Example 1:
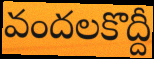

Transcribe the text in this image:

వందలకొద్దీ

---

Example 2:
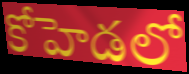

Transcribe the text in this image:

కోహెడలో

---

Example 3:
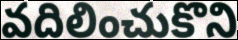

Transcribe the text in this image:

వదిలించుకొని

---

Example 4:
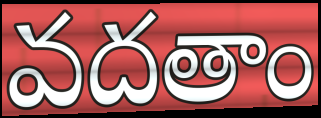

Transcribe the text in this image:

వదతాం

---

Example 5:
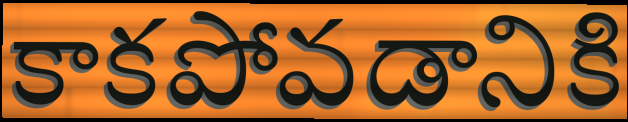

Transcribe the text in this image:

కాకపోవడానికి